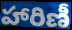
హారిణీ